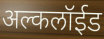
अल्कलॉईड